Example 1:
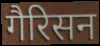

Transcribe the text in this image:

गैरिसन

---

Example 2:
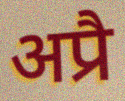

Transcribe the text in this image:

अप्रै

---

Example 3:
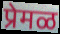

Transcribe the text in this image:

प्रेमळ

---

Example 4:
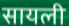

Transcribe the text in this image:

सायली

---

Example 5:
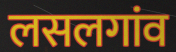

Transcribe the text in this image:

लसलगांव